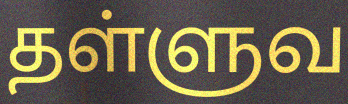
தள்ளுவ